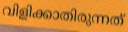
വിളിക്കാതിരുന്നത്